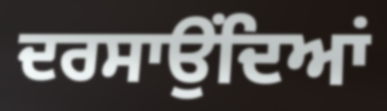
ਦਰਸਾਉਂਦਿਆਂ